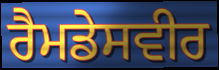
ਰੈਮਡੇਸਵੀਰ